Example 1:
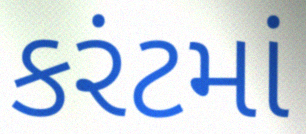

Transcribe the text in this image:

કરંટમાં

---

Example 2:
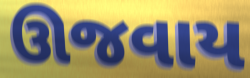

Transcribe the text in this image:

ઊજવાય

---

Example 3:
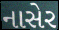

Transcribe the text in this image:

નાસેર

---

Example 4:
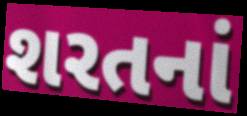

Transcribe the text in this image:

શરતનાં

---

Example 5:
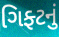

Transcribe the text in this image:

ગિફ્ટનું